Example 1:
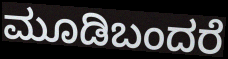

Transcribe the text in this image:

ಮೂಡಿಬಂದರೆ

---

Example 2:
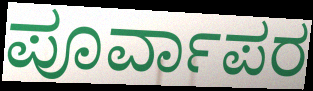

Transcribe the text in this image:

ಪೂರ್ವಾಪರ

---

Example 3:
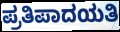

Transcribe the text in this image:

ಪ್ರತಿಪಾದಯತಿ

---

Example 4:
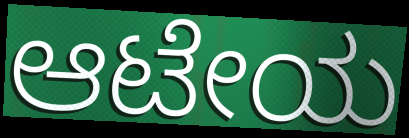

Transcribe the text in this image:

ಆಟೇಯ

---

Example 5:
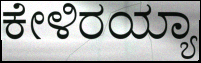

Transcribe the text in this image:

ಕೇಳಿರಯ್ಯಾ